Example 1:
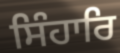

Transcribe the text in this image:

ਸਿੰਹਾਰਿ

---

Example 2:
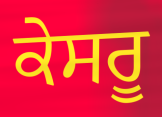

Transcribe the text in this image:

ਕੇਸਰੂ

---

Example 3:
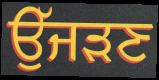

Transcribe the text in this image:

ਉੱਜੜਣ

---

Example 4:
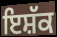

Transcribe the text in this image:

ਇਸ਼ੱਕ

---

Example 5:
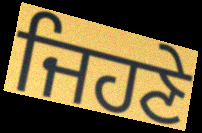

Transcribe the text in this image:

ਜਿਹਣੇ